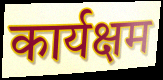
कार्यक्षम